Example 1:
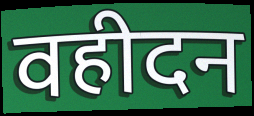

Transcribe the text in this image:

वहीदन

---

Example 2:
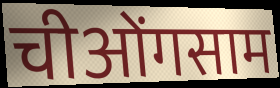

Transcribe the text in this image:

चीओंगसाम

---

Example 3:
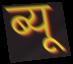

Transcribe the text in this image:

ब्यू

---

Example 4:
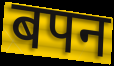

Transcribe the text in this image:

बपन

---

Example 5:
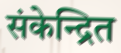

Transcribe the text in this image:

संकेन्द्रित